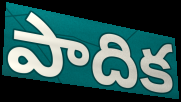
పాదిక